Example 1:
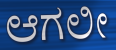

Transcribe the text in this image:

ಆಗಲೀ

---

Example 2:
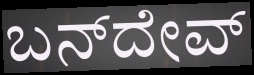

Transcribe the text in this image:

ಬನ್‌ದೇವ್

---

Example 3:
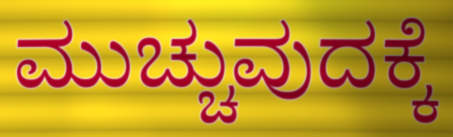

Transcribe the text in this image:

ಮುಚ್ಚುವುದಕ್ಕೆ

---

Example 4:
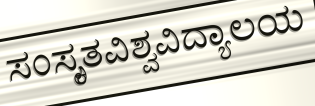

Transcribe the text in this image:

ಸಂಸ್ಕೃತವಿಶ್ವವಿದ್ಯಾಲಯ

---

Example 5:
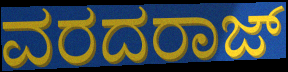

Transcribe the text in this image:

ವರದರಾಜ್